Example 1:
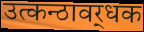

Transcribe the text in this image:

उत्कन्ठावर्धक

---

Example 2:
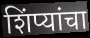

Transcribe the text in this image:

शिंप्यांचा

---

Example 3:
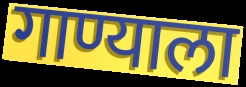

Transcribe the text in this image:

गाण्याला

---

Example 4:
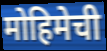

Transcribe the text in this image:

मोहिमेची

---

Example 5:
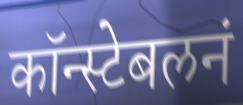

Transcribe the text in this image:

कॉन्स्टेबलनं